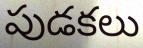
పుడకలు